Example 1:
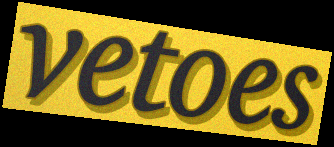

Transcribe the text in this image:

vetoes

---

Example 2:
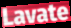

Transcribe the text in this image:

Lavate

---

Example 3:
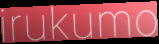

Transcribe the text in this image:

irukumo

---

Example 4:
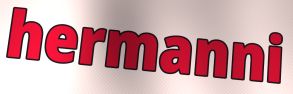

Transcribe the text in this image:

hermanni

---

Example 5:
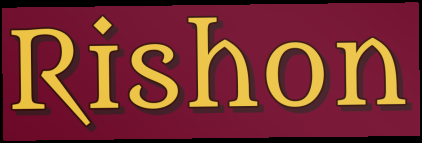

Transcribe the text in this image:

Rishon